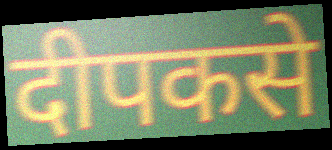
दीपकसे